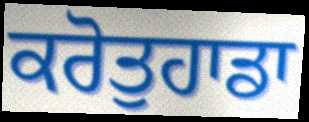
ਕਰੋਤੁਹਾਡਾ